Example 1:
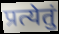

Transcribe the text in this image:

प्रत्येतुं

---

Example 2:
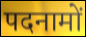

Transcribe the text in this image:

पदनामों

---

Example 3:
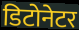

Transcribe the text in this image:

डिटोनेटर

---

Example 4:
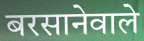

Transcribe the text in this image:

बरसानेवाले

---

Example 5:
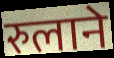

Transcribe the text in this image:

रुलाने